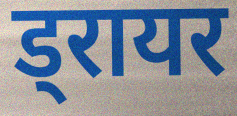
ड्रायर